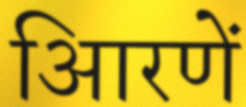
आिरणें